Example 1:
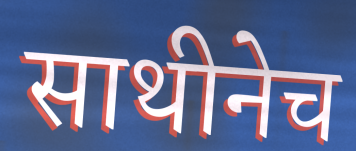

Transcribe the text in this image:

साथीनेच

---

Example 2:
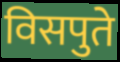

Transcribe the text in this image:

विसपुते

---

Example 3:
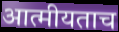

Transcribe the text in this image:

आत्मीयताच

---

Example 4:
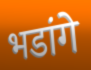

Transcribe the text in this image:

भडांगे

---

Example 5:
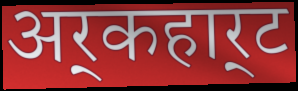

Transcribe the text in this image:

अर्कहार्ट